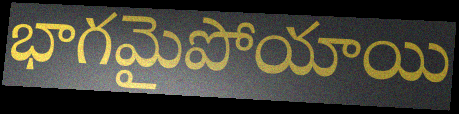
భాగమైపోయాయి